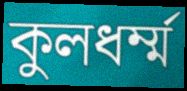
কুলধর্ম্ম